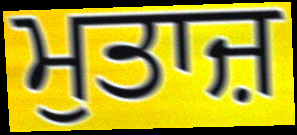
ਮੁਤਾਜ਼